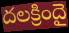
దలక్రిందై